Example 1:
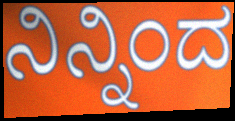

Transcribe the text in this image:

ನಿನ್ನಿಂದ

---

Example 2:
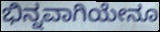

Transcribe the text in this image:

ಭಿನ್ನವಾಗಿಯೇನೂ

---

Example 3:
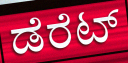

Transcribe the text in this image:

ಡೆರೆಟ್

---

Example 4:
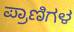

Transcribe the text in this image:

ಪ್ರಾಣಿಗಳ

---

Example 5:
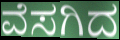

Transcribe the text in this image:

ವೆಸಗಿದ